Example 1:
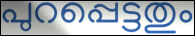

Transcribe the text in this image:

പുറപ്പെട്ടതും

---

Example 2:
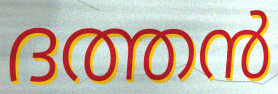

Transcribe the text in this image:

ദത്തൻ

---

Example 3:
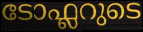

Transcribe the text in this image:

ടോഫ്ലറുടെ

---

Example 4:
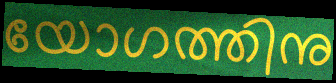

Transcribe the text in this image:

യോഗത്തിനു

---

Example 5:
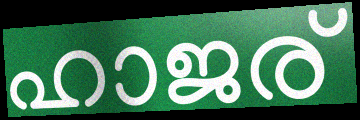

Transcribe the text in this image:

ഹാജര്